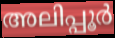
അലിപ്പൂർ